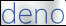
deno